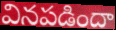
వినపడిందా